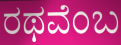
ರಥವೆಂಬ